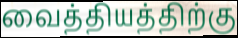
வைத்தியத்திற்கு